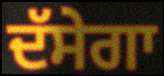
ਦੱਸੇਗਾ